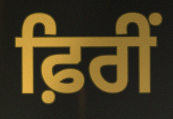
ਫ਼ਿਰੀਂ